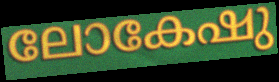
ലോകേഷു